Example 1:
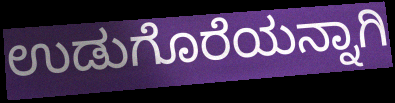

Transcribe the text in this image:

ಉಡುಗೊರೆಯನ್ನಾಗಿ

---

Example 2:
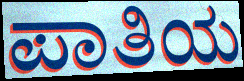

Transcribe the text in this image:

ಪಾತಿಯ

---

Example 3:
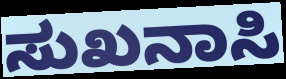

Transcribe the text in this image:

ಸುಖನಾಸಿ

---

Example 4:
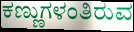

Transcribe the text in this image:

ಕಣ್ಣುಗಳಂತಿರುವ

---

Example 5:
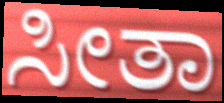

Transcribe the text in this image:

ಸೀತಾ